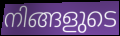
നിങ്ങളുടെ